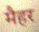
मैहर